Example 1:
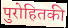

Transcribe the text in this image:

पुरोहितकी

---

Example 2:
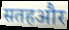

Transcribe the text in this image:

सतहऔर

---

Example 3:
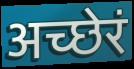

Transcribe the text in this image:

अच्छेरं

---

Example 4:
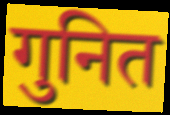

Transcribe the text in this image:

गुनित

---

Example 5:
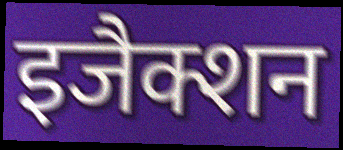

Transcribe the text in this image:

इजैक्शन